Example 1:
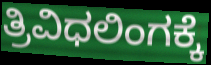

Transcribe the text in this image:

ತ್ರಿವಿಧಲಿಂಗಕ್ಕೆ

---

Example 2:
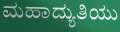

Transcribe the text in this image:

ಮಹಾದ್ಯುತಿಯು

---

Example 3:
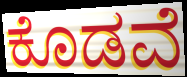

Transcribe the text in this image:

ಕೊಡವೆ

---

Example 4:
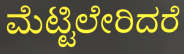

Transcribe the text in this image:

ಮೆಟ್ಟಿಲೇರಿದರೆ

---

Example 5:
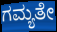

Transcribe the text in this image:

ಗಮ್ಯತೇ